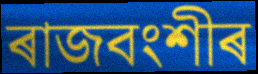
ৰাজবংশীৰ